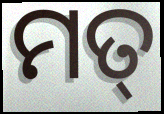
ମତ୍